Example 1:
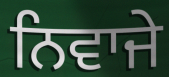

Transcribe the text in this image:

ਨਿਵਾਜੇ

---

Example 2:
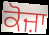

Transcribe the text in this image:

ਕੋਜ਼ਾ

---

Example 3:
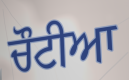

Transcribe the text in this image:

ਚੌਟੀਆ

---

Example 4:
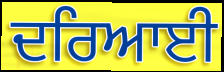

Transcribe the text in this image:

ਦਰਿਆਈ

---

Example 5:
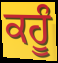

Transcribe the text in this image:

ਕਹੂੰ